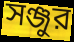
সঞ্জুর